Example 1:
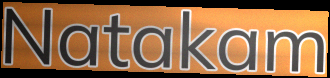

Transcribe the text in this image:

Natakam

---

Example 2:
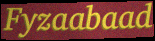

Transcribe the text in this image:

Fyzaabaad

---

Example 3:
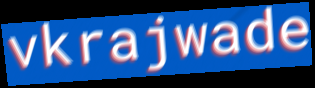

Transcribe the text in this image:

vkrajwade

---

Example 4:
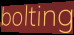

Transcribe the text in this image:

bolting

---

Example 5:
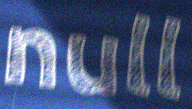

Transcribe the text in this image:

null